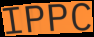
IPPC